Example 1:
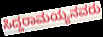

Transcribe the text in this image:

ಸಿದ್ದರಾಮಯ್ಯನವರು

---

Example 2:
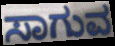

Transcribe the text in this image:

ಸಾಗುವ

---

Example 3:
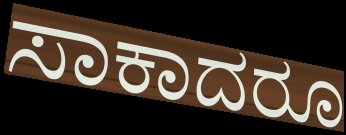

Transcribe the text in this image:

ಸಾಕಾದರೂ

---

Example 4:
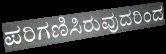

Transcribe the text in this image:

ಪರಿಗಣಿಸಿರುವುದರಿಂದ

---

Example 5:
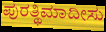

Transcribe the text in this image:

ಪುರತ್ಥಿಮಾದೀಸು